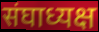
संघाध्यक्ष